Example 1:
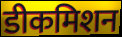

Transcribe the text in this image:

डीकमिशन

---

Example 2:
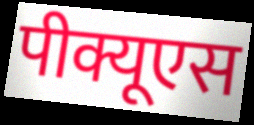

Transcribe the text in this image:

पीक्यूएस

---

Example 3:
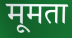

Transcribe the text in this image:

मूमता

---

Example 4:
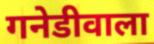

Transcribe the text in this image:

गनेडीवाला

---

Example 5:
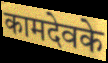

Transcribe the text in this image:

कामदेवके